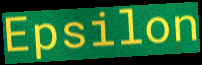
Epsilon